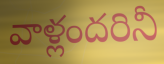
వాళ్లందరినీ